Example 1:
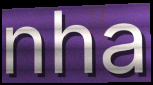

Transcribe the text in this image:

nha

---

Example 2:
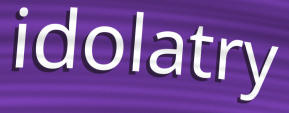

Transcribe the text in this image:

idolatry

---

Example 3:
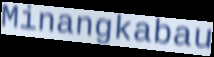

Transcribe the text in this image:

Minangkabau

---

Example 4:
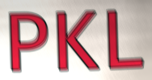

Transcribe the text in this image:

PKL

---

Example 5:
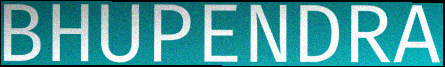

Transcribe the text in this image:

BHUPENDRA